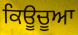
ਕਿਊਚੂਆ